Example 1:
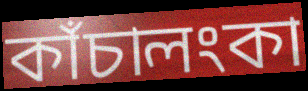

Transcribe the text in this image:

কাঁচালংকা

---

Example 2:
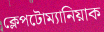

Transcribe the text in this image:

ক্লেপটোম্যানিয়াক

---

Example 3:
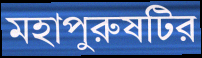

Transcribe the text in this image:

মহাপুরুষটির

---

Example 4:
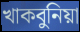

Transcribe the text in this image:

খাকবুনিয়া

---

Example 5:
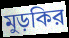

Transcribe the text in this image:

মুড়কির